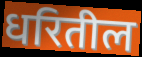
धरितील